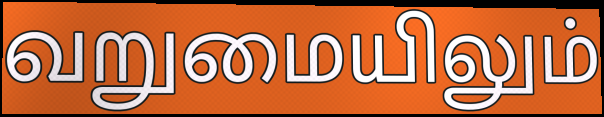
வறுமையிலும்